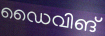
ഡൈവിങ്